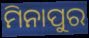
ମିନାପୁର